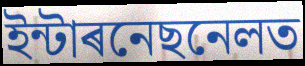
ইন্টাৰনেছনেলত